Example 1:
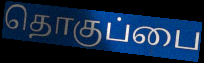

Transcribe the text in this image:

தொகுப்பை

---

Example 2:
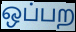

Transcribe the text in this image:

ஒப்பற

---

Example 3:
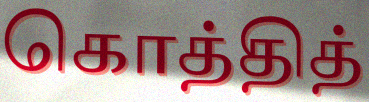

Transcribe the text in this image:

கொத்தித்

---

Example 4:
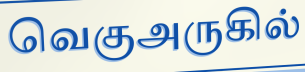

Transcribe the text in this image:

வெகுஅருகில்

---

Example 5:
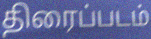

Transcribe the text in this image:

திரைப்படம்